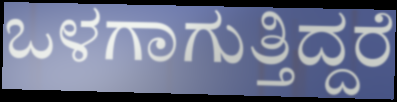
ಒಳಗಾಗುತ್ತಿದ್ದರೆ